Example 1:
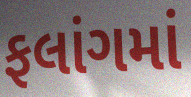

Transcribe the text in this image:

ફલાંગમાં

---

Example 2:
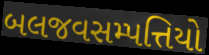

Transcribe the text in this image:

બલજવસમ્પત્તિયો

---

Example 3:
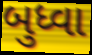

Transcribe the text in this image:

બુધ્વા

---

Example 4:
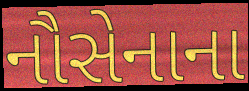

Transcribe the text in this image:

નૌસેનાના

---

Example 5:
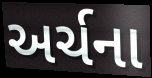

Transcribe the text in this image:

અર્ચના